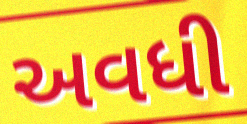
અવધી